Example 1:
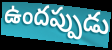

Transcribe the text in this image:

ఉందప్పుడు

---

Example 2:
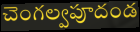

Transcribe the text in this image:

చెంగల్వపూదండ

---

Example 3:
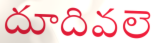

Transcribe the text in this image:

దూదివలె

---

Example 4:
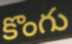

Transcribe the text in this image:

కొంగు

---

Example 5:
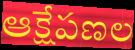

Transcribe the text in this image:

ఆక్షేపణల